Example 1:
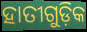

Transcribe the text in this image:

ହାତୀଗୁଡ଼ିକ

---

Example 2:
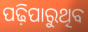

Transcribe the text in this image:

ପଢ଼ିପାରୁଥିବ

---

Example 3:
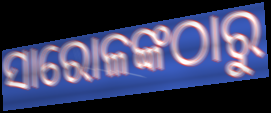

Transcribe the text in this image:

ସାରୋଳଙ୍କଠାରୁ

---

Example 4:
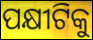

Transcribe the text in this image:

ପକ୍ଷୀଟିକୁ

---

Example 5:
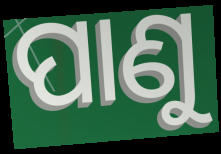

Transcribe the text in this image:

ପାଣୁ